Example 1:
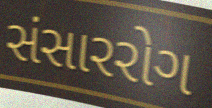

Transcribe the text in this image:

સંસારરોગ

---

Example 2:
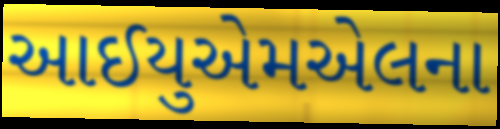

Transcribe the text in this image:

આઈયુએમએલના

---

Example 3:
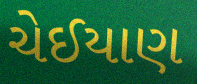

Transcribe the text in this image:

ચેઈયાણ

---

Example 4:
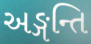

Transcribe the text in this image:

અઙ્ગન્તિ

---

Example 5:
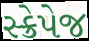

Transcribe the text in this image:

સ્ક્રેપેજ